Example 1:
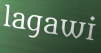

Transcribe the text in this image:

lagawi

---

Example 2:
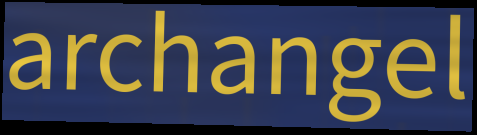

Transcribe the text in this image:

archangel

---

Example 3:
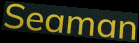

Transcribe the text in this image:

Seaman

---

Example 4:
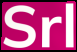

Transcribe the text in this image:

Srl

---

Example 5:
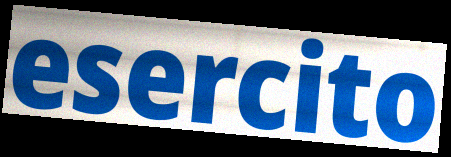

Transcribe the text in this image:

esercito